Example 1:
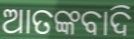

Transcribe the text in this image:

ଆତଙ୍କବାଦି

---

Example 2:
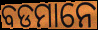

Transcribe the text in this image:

ବଡମାନେ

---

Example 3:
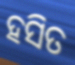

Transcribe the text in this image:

ହସିତ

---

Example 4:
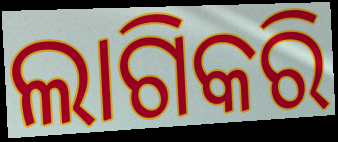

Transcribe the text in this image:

ଲାଗିକରି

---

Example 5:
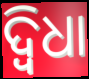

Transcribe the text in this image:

ଦ୍ୱିଧା